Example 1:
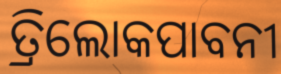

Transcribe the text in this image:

ତ୍ରିଲୋକପାବନୀ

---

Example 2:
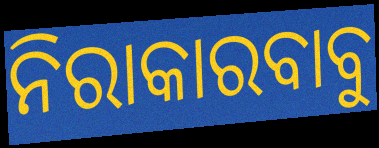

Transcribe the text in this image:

ନିରାକାରବାବୁ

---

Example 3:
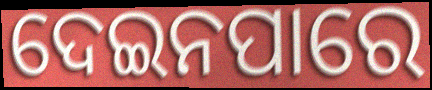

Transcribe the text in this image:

ଦେଇନପାରେ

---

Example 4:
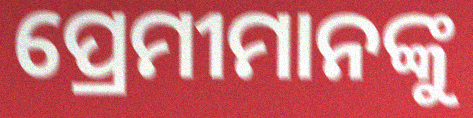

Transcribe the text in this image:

ପ୍ରେମୀମାନଙ୍କୁ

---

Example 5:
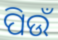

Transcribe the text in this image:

ପିଉଁ